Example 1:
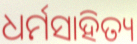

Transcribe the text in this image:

ଧର୍ମସାହିତ୍ୟ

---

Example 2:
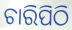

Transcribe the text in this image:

ଚାରିପିଠି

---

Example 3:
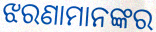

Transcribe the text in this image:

ଝରଣାମାନଙ୍କର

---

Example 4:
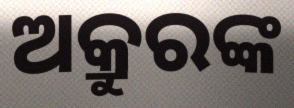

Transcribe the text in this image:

ଅକ୍ରୁରଙ୍କ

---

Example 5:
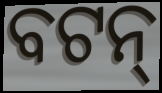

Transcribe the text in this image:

ବଟନ୍